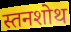
स्तनशोथ